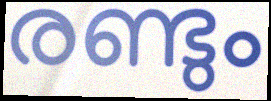
രണ്ടും